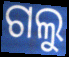
ଗଲୁ